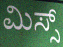
ಮಿಸ್ಸ್